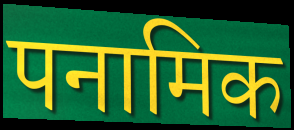
पनामिक